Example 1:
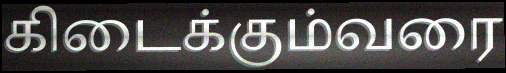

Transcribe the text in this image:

கிடைக்கும்வரை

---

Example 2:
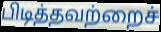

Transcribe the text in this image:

பிடித்தவற்றைச்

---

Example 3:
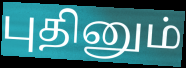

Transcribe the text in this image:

புதினும்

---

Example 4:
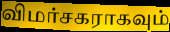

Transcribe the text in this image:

விமர்சகராகவும்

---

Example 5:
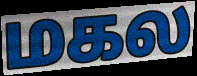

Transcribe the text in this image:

மகல